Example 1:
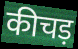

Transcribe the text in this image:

कीचड़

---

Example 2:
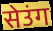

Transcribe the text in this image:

सेउंग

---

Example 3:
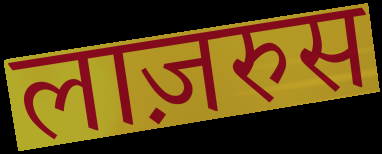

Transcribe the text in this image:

लाज़रुस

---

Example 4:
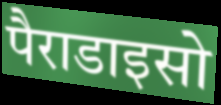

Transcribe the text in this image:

पैराडाइसो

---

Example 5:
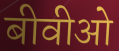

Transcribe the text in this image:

बीवीओ